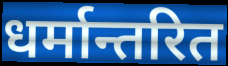
धर्मान्तरित